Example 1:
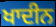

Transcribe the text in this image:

ਖਾਦੀਨ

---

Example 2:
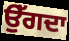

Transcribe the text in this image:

ਉੱਗਦਾ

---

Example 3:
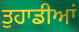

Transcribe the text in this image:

ਤੁਹਾਡੀਆਂ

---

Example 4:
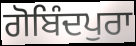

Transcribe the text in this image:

ਗੋਬਿੰਦਪੁਰਾ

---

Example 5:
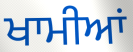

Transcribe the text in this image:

ਖਾਮੀਆਂ